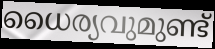
ധൈര്യവുമുണ്ട്